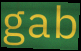
gab